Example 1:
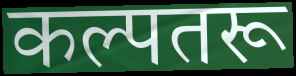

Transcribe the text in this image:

कल्पतरू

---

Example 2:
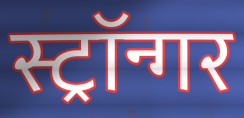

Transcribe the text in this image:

स्ट्रॉन्गर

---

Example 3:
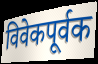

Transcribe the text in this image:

विवेकपूर्वक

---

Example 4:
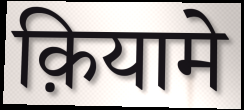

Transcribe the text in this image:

क़ियामे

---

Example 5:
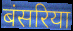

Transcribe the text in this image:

बंसरिया